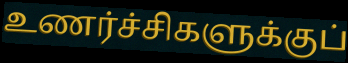
உணர்ச்சிகளுக்குப்